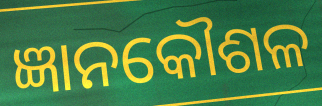
ଜ୍ଞାନକୌଶଳ